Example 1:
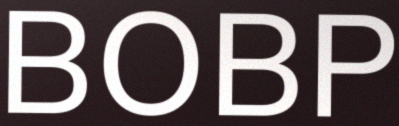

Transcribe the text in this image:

BOBP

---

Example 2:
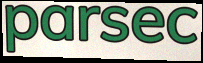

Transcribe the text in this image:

parsec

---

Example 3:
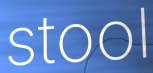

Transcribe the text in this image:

stool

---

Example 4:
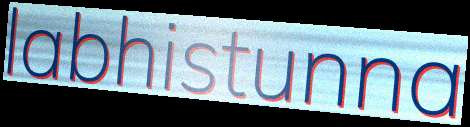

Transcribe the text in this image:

labhistunna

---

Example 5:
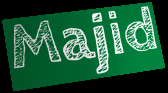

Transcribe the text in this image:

Majid